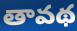
తావథ